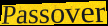
Passover